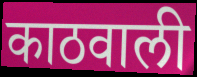
काठवाली